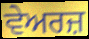
ਵੇਅਰਜ਼